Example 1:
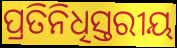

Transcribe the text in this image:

ପ୍ରତିନିଧିସ୍ତରୀୟ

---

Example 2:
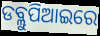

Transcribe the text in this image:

ଡବ୍ଲୁପିଆଇରେ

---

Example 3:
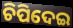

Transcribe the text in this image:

ଚିପିଦେଇ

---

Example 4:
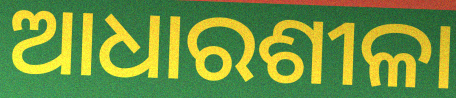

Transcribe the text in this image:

ଆଧାରଶୀଳା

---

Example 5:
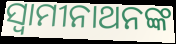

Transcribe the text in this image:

ସ୍ଵାମୀନାଥନଙ୍କ